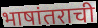
भाषांतराची